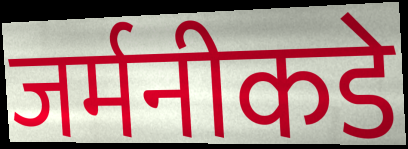
जर्मनीकडे